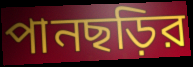
পানছড়ির